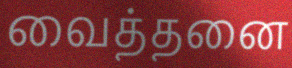
வைத்தனை